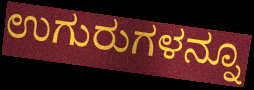
ಉಗುರುಗಳನ್ನೂ